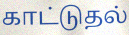
காட்டுதல்